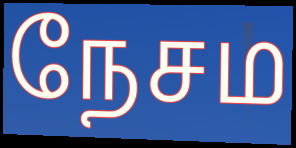
நேசம